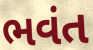
ભવંત